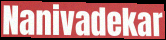
Nanivadekar